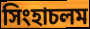
সিংহাচলম